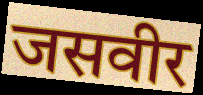
जसवीर